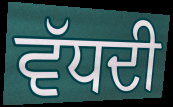
ਵੱਧਦੀ